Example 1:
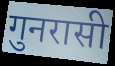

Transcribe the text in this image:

गुनरासी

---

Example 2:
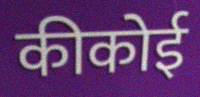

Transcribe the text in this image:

कीकोई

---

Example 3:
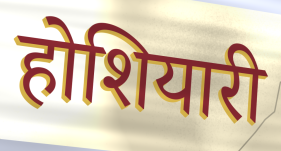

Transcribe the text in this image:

होशियारी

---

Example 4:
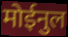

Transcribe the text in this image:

मोईनुल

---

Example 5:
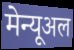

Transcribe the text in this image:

मेन्यूअल